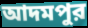
আদমপুর